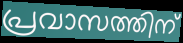
പ്രവാസത്തിന്